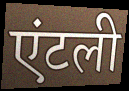
एंटली